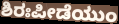
ಶಿರಃಪೀಡೆಯುಂ